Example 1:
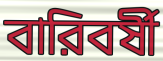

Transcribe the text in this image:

বারিবর্ষী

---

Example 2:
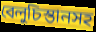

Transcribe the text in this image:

বেলুচিস্তানসহ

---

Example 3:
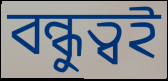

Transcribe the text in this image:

বন্ধুত্বই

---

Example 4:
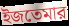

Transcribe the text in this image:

ইজতেমার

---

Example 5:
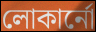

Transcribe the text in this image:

লোকার্নো